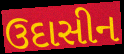
ઉદાસીન